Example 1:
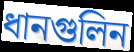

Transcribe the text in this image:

ধানগুলিন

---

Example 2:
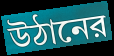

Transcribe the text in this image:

উঠানের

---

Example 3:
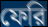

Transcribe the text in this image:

ফেরি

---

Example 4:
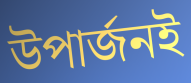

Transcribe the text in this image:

উপার্জনই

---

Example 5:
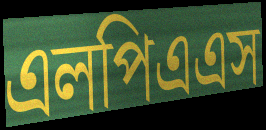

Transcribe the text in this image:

এলপিএএস